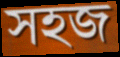
সহজ